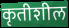
कृतीशील